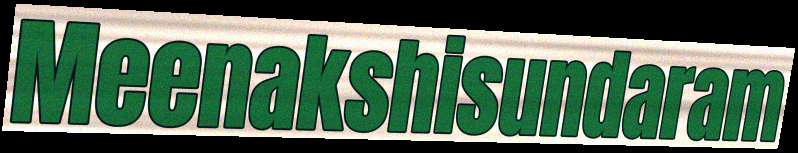
Meenakshisundaram